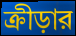
ক্রীড়ার